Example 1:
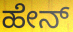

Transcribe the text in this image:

ಹೇನ್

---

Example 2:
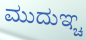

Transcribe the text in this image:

ಮುದುಞ್ಚ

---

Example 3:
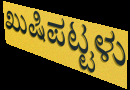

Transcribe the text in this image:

ಖುಷಿಪಟ್ಟಳು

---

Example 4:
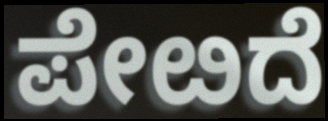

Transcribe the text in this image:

ಪೇೞದೆ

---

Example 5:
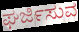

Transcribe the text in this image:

ಘರ್ಜಿಸುವ